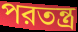
পরতন্ত্র